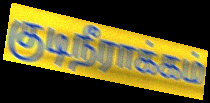
குடிநீராக்கம்